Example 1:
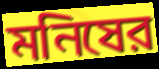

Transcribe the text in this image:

মনিষের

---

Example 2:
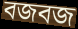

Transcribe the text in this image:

বজবজ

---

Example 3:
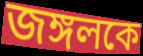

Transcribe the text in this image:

জঙ্গলকে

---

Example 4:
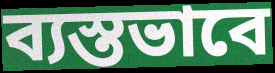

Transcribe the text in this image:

ব্যস্তভাবে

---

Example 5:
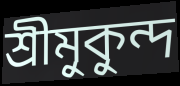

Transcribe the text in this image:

শ্রীমুকুন্দ